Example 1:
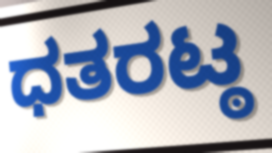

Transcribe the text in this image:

ಧತರಟ್ಠ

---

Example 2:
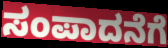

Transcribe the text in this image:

ಸಂಪಾದನೆಗೆ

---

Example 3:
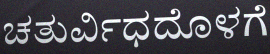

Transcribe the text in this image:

ಚತುರ್ವಿಧದೊಳಗೆ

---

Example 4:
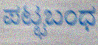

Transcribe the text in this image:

ಪಟ್ಟಬಂಧ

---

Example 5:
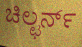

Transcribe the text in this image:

ಚಿಲ್ಟರ್ನ್